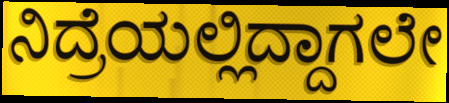
ನಿದ್ರೆಯಲ್ಲಿದ್ದಾಗಲೇ